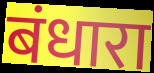
बंधारा